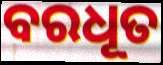
ବରଧୂତ